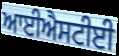
ਆਈਐਸਟੀਈ